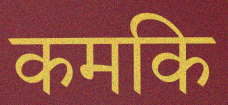
कमकि